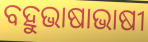
ବହୁଭାଷାଭାଷୀ